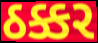
ઠક્કર